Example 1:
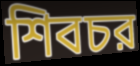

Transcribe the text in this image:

শিবচর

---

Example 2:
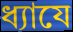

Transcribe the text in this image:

ধ্যাযে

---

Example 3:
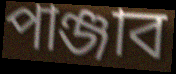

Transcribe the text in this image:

পাঞ্জাব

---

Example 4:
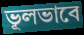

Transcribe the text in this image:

ভূলভাবে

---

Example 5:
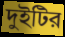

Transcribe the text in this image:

দুইটির